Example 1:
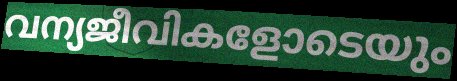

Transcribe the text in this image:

വന്യജീവികളോടെയും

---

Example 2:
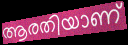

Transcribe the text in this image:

ആരതിയാണ്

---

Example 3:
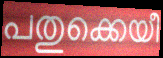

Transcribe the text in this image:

പതുക്കെയീ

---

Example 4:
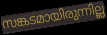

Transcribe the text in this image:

സങ്കടമായിരുന്നില്ല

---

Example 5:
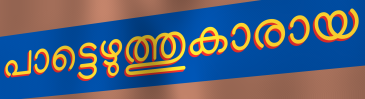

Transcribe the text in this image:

പാട്ടെഴുത്തുകാരായ